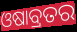
ଓଷାବ୍ରତର